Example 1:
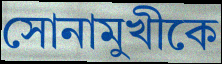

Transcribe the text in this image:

সোনামুখীকে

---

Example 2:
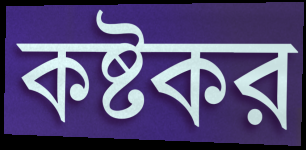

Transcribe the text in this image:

কষ্টকর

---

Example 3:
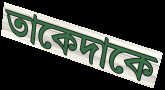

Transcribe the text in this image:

তাকেদাকে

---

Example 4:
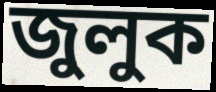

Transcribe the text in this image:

জুলুক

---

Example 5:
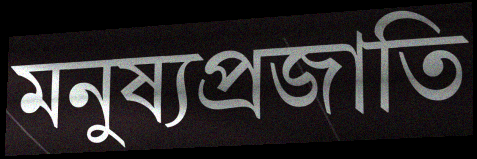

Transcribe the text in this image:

মনুষ্যপ্রজাতি